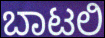
ಬಾಟಲಿ